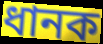
ধানক